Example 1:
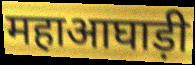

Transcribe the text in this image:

महाआघाड़ी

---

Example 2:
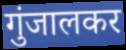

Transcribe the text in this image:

गुंजालकर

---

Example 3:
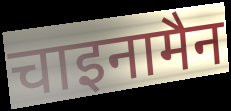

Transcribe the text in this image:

चाइनामैन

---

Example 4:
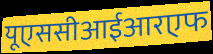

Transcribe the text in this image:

यूएससीआईआरएफ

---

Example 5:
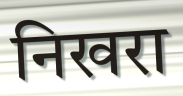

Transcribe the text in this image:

निखरा